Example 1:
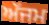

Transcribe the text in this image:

ਅੱਜਮ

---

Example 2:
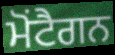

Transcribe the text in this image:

ਮੋਂਟੈਗਨ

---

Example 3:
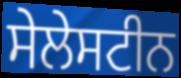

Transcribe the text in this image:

ਸੇਲੇਸਟੀਨ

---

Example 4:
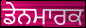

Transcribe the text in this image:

ਡੇਨਮਾਰਕ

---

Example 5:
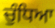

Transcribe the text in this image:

ਚੁੰਧਿਆ